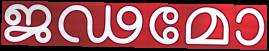
ജഢമോ